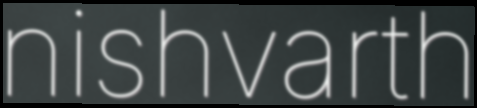
nishvarth